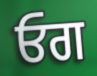
ਓਗ